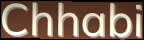
Chhabi